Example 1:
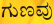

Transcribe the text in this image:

ಗುಣವು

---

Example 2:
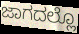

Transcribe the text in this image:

ಜಾಗದಲ್ಲೊ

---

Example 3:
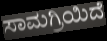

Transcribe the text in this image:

ಸಾಮಗ್ರಿಯಿದೆ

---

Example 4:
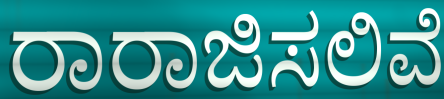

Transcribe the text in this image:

ರಾರಾಜಿಸಲಿವೆ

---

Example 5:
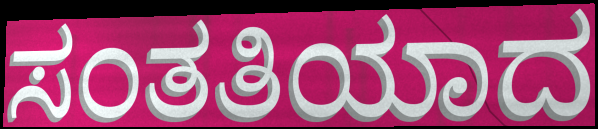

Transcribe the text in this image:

ಸಂತತಿಯಾದ